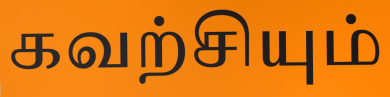
கவற்சியும்